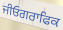
ਜੀਓਗਰਾਫਿਕ